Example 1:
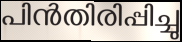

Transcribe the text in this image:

പിൻതിരിപ്പിച്ചു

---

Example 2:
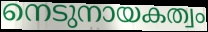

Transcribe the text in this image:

നെടുനായകത്വം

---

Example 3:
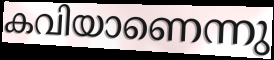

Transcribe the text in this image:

കവിയാണെന്നു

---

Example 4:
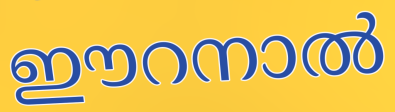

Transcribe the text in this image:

ഈറനാൽ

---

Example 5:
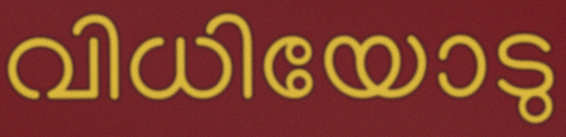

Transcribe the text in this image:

വിധിയോടു